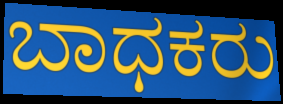
ಬಾಧಕರು